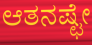
ಆತನಷ್ಟೇ